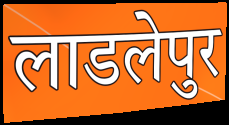
लाडलेपुर